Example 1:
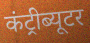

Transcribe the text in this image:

कंट्रीब्यूटर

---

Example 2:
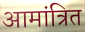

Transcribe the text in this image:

आमांत्रित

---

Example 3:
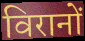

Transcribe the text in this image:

विरानों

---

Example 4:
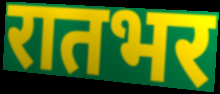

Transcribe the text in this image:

रातभर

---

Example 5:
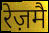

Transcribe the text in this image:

रेज़मै